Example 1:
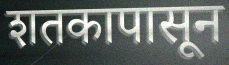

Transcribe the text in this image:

शतकापासून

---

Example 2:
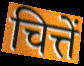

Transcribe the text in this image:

चित्तें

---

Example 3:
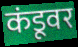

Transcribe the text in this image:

कंडूवर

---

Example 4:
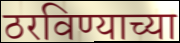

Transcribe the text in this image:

ठरविण्याच्या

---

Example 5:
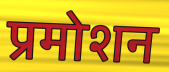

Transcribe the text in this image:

प्रमोशन